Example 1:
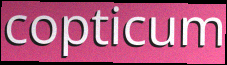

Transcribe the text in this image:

copticum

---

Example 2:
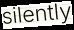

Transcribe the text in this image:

silently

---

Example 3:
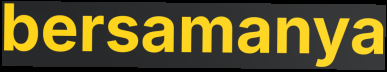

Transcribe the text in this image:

bersamanya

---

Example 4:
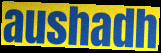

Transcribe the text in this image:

aushadh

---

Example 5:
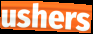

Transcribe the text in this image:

ushers